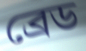
ব্রেড